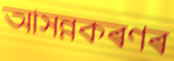
আসন্নকৰণৰ